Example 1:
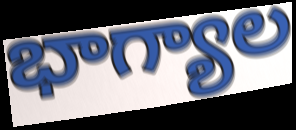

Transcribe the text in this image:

భాగ్యాల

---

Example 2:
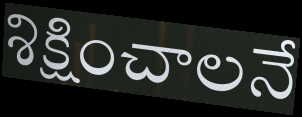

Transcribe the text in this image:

శిక్షించాలనే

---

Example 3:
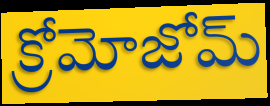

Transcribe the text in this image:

క్రోమోజోమ్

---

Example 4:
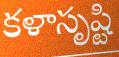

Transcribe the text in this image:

కళాసృష్టి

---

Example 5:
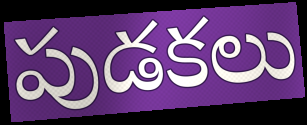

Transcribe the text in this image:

పుడకలు